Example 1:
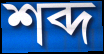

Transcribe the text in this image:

শব্দ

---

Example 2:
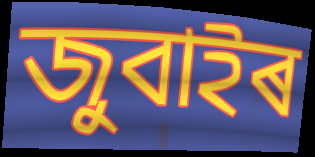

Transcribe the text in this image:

জুবাইৰ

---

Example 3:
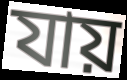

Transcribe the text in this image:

যায়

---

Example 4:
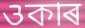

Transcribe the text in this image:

ওকাৰ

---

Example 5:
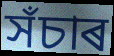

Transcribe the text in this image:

সঁচাৰ